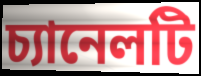
চ্যানেলটি